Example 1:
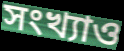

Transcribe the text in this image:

সংখ্যাও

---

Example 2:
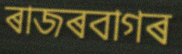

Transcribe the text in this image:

ৰাজৰবাগৰ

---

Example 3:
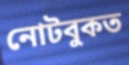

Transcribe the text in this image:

নোটবুকত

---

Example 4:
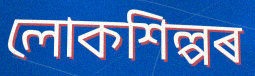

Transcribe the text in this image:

লোকশিল্পৰ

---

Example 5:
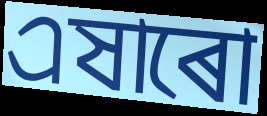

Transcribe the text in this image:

এষাৰো